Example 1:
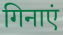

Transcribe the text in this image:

गिनाएं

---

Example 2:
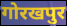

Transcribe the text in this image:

गोरखपुर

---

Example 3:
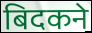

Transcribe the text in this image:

बिदकने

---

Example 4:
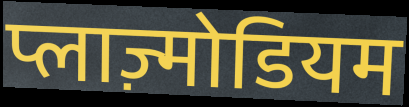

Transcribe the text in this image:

प्लाज़्मोडियम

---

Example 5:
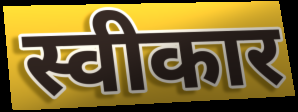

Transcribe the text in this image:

स्वीकार